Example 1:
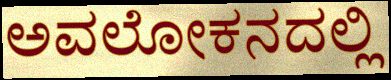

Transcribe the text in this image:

ಅವಲೋಕನದಲ್ಲಿ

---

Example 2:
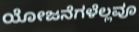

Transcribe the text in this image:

ಯೋಜನೆಗಳೆಲ್ಲವೂ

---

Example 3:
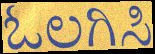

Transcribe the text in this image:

ಓಲಗಿಸಿ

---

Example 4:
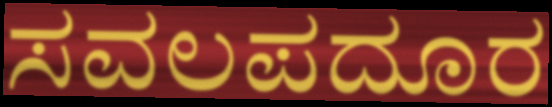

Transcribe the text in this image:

ಸವಲಪದೂರ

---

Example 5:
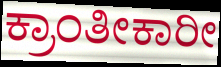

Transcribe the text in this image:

ಕ್ರಾಂತೀಕಾರೀ